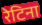
रेटिना